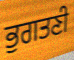
ਭੁਗਤਣੀ